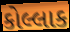
કોલ્લાક